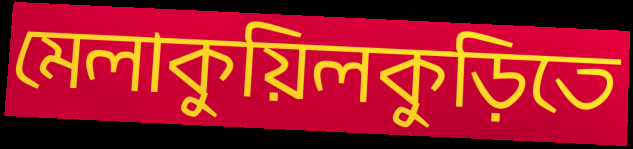
মেলাকুয়িলকুড়িতে